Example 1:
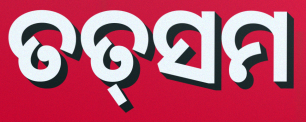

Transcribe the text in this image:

ତତ୍‍ସମ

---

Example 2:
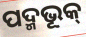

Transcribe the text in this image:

ପଦ୍ମଭୂକ୍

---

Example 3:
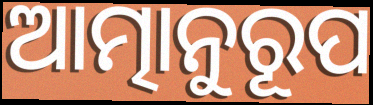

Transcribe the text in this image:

ଆତ୍ମାନୁରୂପ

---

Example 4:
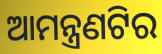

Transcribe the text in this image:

ଆମନ୍ତ୍ରଣଟିର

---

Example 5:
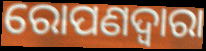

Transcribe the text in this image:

ରୋପଣଦ୍ୱାରା